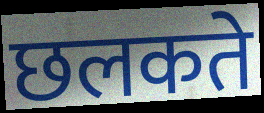
छलकते